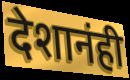
देशानंही